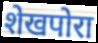
शेखपोरा